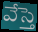
వేస్తె